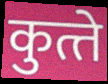
कुत्‍ते